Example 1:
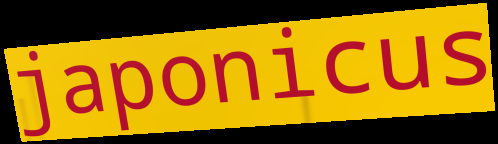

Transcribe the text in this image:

japonicus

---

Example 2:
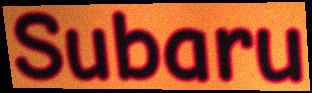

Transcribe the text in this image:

Subaru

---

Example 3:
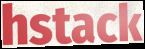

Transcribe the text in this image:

hstack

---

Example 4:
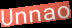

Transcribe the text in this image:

Unnao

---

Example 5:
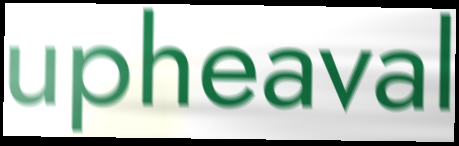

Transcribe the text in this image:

upheaval